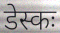
डेस्कः